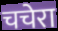
चचेरा